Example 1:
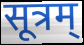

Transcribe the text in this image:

सूत्रम्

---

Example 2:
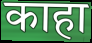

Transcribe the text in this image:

काहा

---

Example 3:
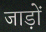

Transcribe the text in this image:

जाड़ों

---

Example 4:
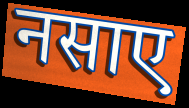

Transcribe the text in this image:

नसाए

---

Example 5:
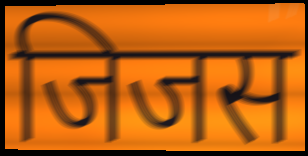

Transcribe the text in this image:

जिजस